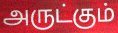
அருட்கும்